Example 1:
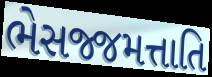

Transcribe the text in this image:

ભેસજ્જમત્તાતિ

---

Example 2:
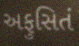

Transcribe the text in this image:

અફુસિતં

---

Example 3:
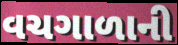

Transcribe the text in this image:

વચગાળાની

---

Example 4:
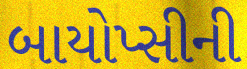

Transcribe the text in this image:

બાયોપ્સીની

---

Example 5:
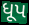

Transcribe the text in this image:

ધૂપ